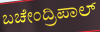
ಬಚೇಂದ್ರಿಪಾಲ್